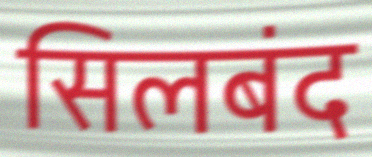
सिलबंद